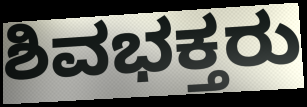
ಶಿವಭಕ್ತರು